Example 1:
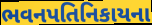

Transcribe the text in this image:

ભવનપતિનિકાયના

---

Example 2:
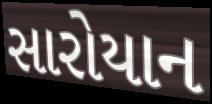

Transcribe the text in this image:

સારોયાન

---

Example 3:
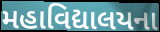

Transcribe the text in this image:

મહાવિદ્યાલયના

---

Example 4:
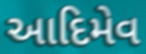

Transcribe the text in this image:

આદિમેવ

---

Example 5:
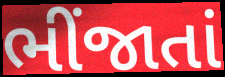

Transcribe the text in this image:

ભીંજાતાં